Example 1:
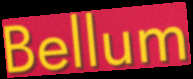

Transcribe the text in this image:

Bellum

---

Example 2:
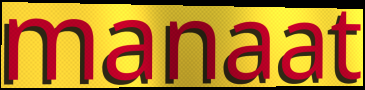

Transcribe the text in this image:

manaat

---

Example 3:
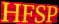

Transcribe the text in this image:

HFSP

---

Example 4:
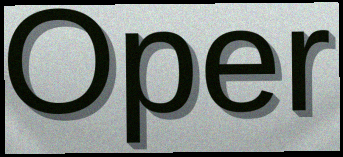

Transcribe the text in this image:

Oper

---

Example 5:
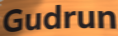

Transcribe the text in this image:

Gudrun